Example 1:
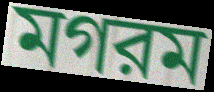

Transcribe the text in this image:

মগরম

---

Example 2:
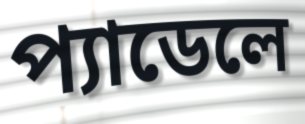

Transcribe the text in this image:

প্যাডেলে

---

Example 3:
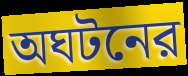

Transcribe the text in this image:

অঘটনের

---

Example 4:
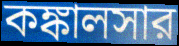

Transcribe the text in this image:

কঙ্কালসার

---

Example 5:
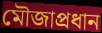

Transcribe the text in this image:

মৌজাপ্রধান